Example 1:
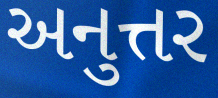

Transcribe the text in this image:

અનુત્તર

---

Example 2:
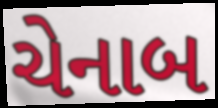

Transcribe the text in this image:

ચેનાબ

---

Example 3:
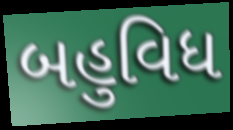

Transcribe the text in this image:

બહુવિધ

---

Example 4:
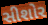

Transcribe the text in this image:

સીશોર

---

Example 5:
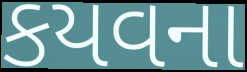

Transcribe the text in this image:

કયવના